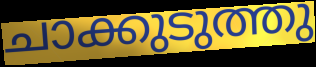
ചാക്കുടുത്തു